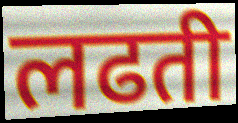
लढती